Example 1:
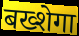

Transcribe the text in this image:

बख्शेगा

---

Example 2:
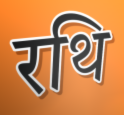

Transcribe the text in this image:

रथि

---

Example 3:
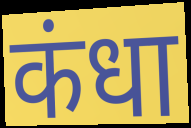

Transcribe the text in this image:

कंधा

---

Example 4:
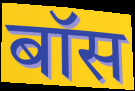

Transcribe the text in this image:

बॉस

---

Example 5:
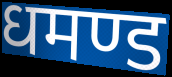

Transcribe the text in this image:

धमण्ड